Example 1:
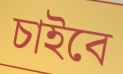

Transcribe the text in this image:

চাইবে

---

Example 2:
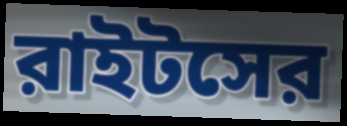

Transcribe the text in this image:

রাইটসের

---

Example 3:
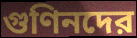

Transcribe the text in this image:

গুণিনদের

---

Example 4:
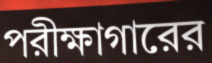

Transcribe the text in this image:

পরীক্ষাগারের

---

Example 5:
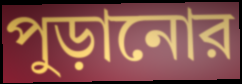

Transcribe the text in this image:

পুড়ানোর